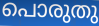
പൊരുതു